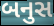
બનુસ